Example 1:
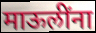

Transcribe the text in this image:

माऊलींना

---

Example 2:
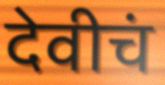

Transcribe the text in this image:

देवीचं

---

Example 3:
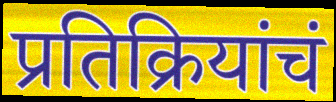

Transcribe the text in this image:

प्रतिक्रियांचं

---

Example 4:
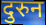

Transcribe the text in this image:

दुरुन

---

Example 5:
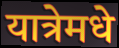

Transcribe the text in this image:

यात्रेमधे